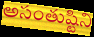
అసంతుష్టిని